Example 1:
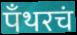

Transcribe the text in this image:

पँथरचं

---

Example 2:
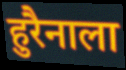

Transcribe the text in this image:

हुरैनाला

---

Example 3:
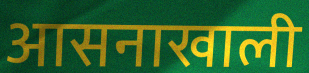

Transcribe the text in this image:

आसनाखाली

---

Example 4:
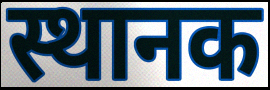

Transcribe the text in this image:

स्थानक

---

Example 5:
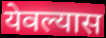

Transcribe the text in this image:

येवल्यास